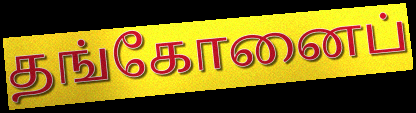
தங்கோனைப்